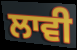
ਲਾਵੀ